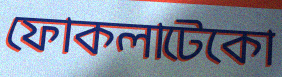
ফোকলাটেকো